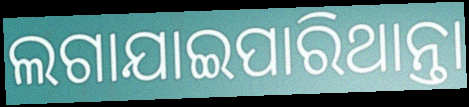
ଲଗାଯାଇପାରିଥାନ୍ତା